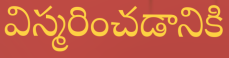
విస్మరించడానికి